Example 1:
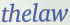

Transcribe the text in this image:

thelaw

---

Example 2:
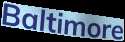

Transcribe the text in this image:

Baltimore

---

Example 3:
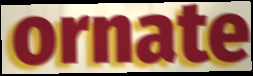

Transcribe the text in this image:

ornate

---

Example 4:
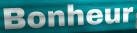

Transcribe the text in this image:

Bonheur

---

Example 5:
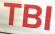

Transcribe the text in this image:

TBI